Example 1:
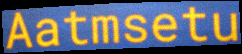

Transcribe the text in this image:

Aatmsetu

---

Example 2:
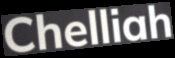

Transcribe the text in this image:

Chelliah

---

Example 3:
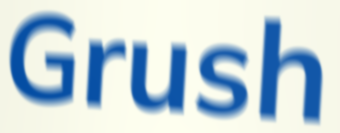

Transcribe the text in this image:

Grush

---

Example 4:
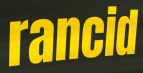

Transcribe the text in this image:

rancid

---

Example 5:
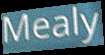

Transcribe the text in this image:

Mealy